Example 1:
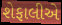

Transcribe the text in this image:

શેફાલીએ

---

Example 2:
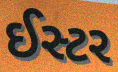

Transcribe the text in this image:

ઈસ્ટર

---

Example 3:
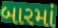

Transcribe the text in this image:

બારમાં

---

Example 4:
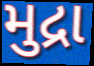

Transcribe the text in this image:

મુદ્રા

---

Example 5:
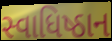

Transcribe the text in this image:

સ્વાધિષ્ઠાન